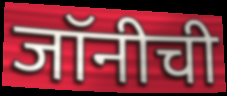
जॉनीची